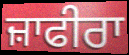
ਜ਼ਾਫੀਰਾ